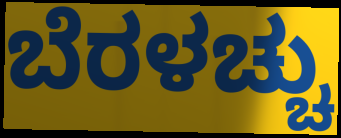
ಬೆರಳಚ್ಚು